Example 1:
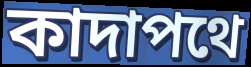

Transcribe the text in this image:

কাদাপথে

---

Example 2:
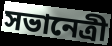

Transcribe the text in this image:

সভানেত্রী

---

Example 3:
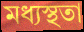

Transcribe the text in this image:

মধ্যস্থতা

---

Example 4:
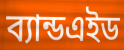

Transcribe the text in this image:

ব্যান্ডএইড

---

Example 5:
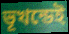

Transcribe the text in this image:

ভূখন্ডেই